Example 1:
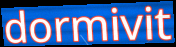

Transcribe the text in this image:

dormivit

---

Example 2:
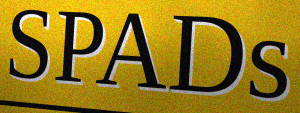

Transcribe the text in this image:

SPADs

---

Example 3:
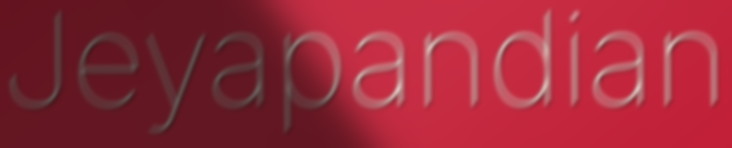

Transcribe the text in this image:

Jeyapandian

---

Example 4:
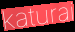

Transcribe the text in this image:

katurai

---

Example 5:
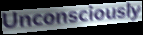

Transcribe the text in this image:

Unconsciously